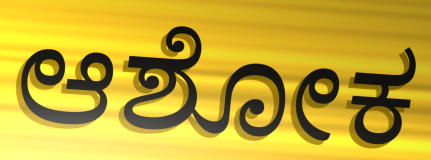
ಆಶೋಕ